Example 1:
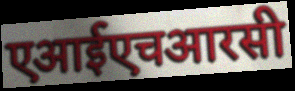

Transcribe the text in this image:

एआईएचआरसी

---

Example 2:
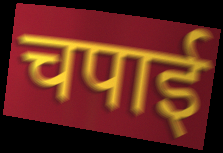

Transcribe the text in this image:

चपाई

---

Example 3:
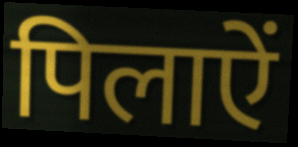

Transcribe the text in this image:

पिलाऐं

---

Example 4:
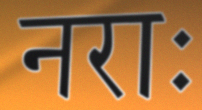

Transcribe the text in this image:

नराः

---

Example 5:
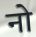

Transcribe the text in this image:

नो